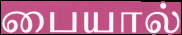
பையால்